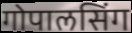
गोपालसिंग